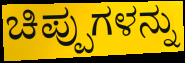
ಚಿಪ್ಪುಗಳನ್ನು